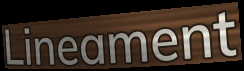
Lineament